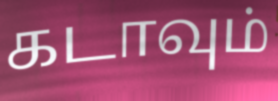
கடாவும்